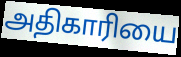
அதிகாரியை